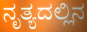
ನೃತ್ಯದಲ್ಲಿನ